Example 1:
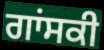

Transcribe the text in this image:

ਗਾਂਸਕੀ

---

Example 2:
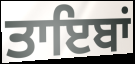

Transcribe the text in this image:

ਤਾਇਬਾਂ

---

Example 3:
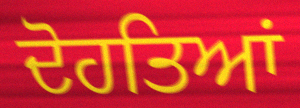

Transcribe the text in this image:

ਦੋਹਤਿਆਂ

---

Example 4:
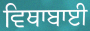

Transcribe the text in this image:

ਵਿਥਾਬਾਈ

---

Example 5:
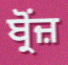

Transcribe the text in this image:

ਬ੍ਰੋਂਜ਼